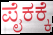
ಪೈಕಕ್ಕೆ